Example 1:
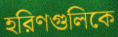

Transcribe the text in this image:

হরিণগুলিকে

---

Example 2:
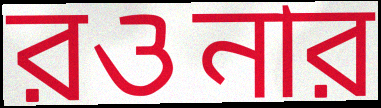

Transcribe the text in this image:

রওনার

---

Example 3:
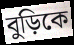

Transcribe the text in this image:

বুড়িকে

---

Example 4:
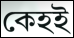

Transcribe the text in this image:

কেহই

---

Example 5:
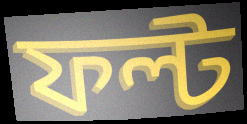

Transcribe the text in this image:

ফল্ট